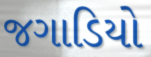
જગાડિયો